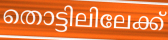
തൊട്ടിലിലേക്ക്